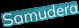
Samudera